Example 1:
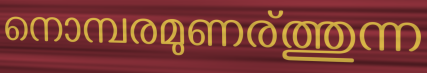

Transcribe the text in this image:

നൊമ്പരമുണര്ത്തുന്ന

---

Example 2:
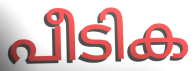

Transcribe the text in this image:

പീടിക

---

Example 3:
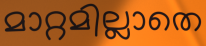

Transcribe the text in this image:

മാറ്റമില്ലാതെ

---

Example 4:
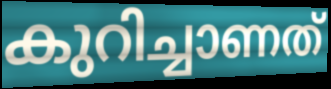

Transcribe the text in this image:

കുറിച്ചാണത്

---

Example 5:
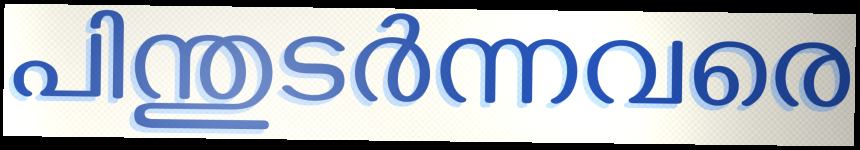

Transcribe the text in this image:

പിന്തുടർന്നവരെ